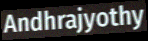
Andhrajyothy